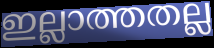
ഇല്ലാത്തതല്ല